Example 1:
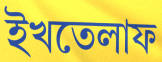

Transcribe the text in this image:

ইখতেলাফ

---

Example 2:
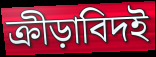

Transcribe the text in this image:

ক্রীড়াবিদই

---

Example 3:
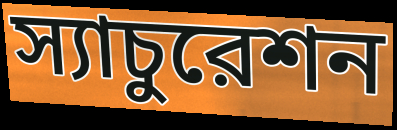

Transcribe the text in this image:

স্যাচুরেশন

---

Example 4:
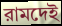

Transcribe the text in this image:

রামদেই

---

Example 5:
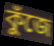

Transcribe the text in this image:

কুঁজে